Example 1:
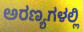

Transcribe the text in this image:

ಅರಣ್ಯಗಳಲ್ಲಿ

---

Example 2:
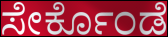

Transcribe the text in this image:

ಸೇರ್ಕೊಂಡೆ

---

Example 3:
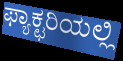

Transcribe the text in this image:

ಫ್ಯಾಕ್ಟರಿಯಲ್ಲಿ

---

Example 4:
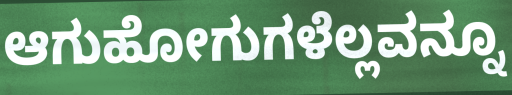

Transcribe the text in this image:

ಆಗುಹೋಗುಗಳೆಲ್ಲವನ್ನೂ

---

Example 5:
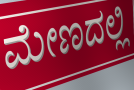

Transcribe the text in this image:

ಮೇಣದಲ್ಲಿ